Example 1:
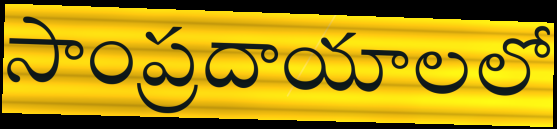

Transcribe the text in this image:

సాంప్రదాయాలలో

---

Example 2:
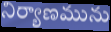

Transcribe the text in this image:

నిర్యాణమును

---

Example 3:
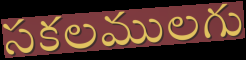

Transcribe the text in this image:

సకలములగు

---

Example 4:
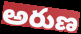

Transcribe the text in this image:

అరుణ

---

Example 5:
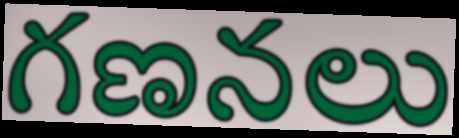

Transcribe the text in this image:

గణనలు